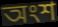
অংশ